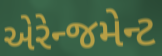
એરેન્જમેન્ટ